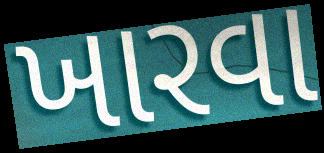
ખારવા